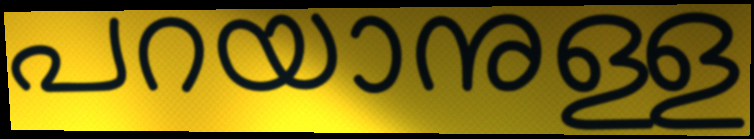
പറയാനുള്ള